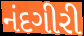
નંદગીરી